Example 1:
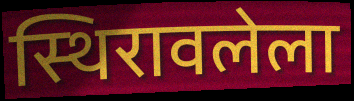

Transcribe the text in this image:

स्थिरावलेला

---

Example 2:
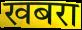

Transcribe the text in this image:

खबरा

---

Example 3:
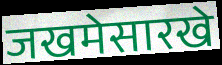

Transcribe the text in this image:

जखमेसारखे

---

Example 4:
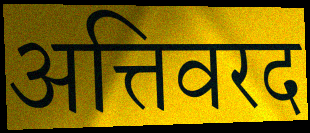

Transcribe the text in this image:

अत्तिवरद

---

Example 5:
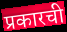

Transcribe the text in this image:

प्रकारची